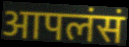
आपलंसं